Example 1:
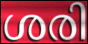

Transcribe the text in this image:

ശരി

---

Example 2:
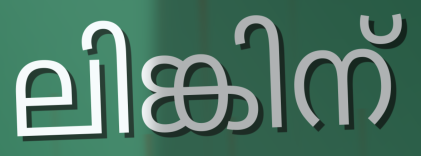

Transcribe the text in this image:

ലിങ്കിന്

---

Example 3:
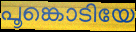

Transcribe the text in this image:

പൂങ്കൊടിയേ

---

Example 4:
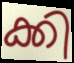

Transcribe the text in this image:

ക്കി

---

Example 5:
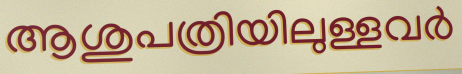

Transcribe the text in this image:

ആശുപത്രിയിലുള്ളവർ